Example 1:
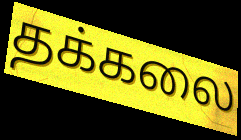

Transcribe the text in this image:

தக்கலை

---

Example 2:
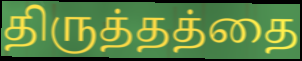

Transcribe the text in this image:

திருத்தத்தை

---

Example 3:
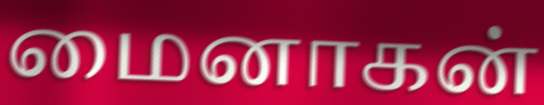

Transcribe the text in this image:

மைனாகன்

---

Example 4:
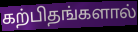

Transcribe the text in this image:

கற்பிதங்களால்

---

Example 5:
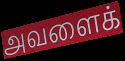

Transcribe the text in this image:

அவளைக்